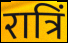
रात्रिं